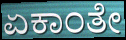
ಏಕಾಂತೇ